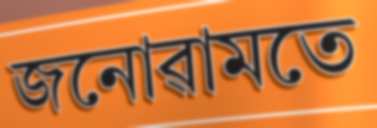
জনোৱামতে